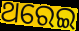
ଥରେଇ